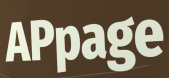
APpage